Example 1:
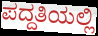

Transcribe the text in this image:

ಪದ್ದತಿಯಲ್ಲಿ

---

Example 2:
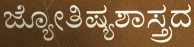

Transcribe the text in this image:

ಜ್ಯೋತಿಷ್ಯಶಾಸ್ತ್ರದ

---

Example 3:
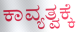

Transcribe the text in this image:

ಕಾವ್ಯತ್ವಕ್ಕೆ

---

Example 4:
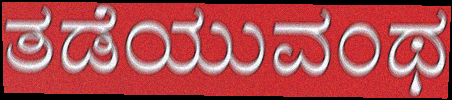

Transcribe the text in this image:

ತಡೆಯುವಂಥ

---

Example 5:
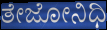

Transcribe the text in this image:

ತೇಜೋನಿಧಿ